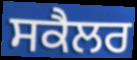
ਸਕੈਲਰ